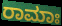
ರಾಮಾಃ